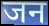
जन